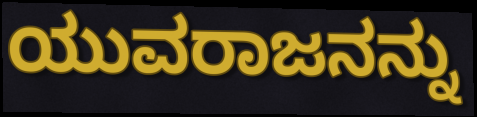
ಯುವರಾಜನನ್ನು